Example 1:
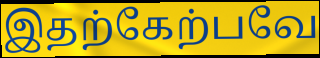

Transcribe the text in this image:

இதற்கேற்பவே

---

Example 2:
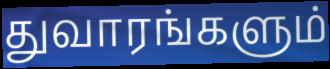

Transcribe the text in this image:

துவாரங்களும்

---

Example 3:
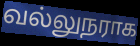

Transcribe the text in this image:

வல்லுநராக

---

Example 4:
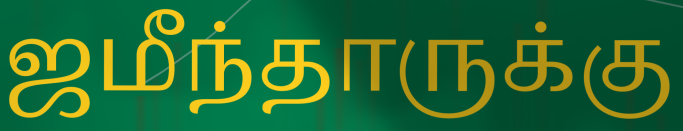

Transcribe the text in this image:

ஜமீந்தாருக்கு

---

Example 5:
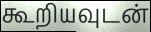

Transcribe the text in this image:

கூறியவுடன்